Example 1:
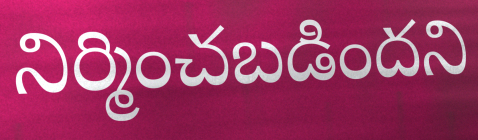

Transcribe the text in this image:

నిర్మించబడిందని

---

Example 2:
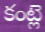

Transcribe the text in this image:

కంట్లె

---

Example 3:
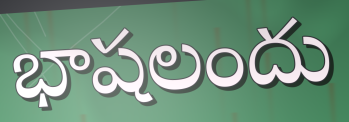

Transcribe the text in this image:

భాషలందు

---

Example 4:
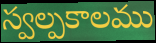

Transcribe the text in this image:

స్వల్పకాలము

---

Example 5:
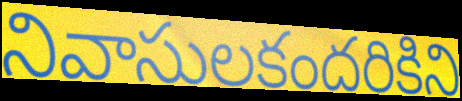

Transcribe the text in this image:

నివాసులకందరికిని